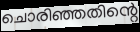
ചൊരിഞ്ഞതിന്റെ